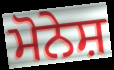
ਮੋਨੇਸ਼